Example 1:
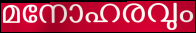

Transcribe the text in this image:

മനോഹരവും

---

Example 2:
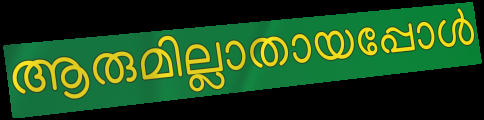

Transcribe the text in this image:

ആരുമില്ലാതായപ്പോൾ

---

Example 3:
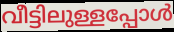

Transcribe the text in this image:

വീട്ടിലുള്ളപ്പോൾ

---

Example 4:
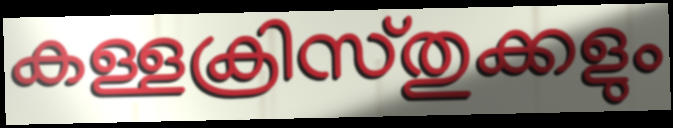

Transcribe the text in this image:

കള്ളക്രിസ്തുക്കളും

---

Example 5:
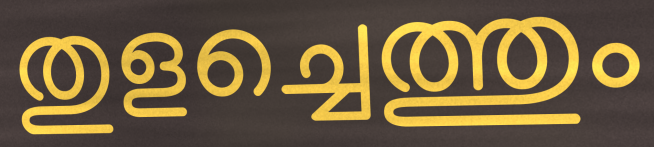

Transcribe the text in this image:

തുളച്ചെത്തും